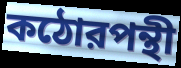
কঠোরপন্থী